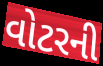
વોટરની